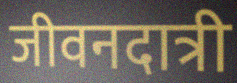
जीवनदात्री